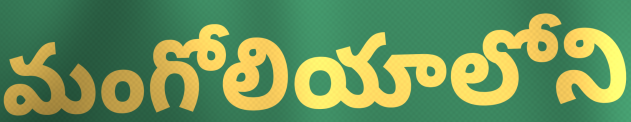
మంగోలియాలోని